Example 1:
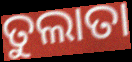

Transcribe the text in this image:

ତୁଲାତା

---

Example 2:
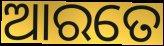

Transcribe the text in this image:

ଆରତେ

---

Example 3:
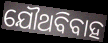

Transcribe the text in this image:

ଯୌଥବିବାହ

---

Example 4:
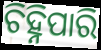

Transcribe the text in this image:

ଚିହ୍ନିପାରି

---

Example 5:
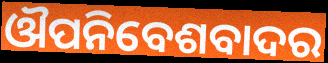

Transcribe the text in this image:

ଔପନିବେଶବାଦର